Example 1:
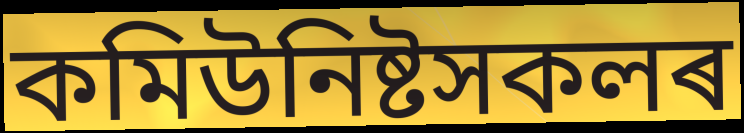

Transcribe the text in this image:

কমিউনিষ্টসকলৰ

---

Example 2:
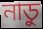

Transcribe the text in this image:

নাডু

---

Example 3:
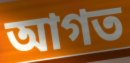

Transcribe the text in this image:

আগত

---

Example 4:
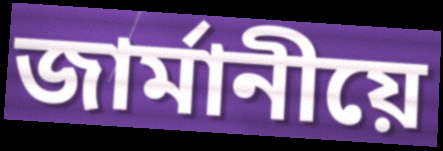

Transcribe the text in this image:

জাৰ্মানীয়ে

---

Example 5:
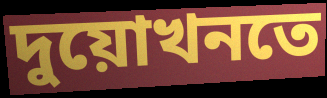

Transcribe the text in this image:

দুয়োখনতে